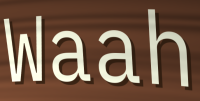
Waah